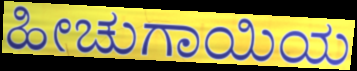
ಹೀಚುಗಾಯಿಯ